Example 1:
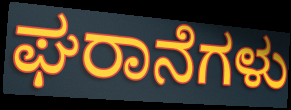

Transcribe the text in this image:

ಘರಾನೆಗಳು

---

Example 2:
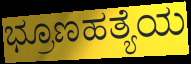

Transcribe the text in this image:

ಭ್ರೂಣಹತ್ಯೆಯ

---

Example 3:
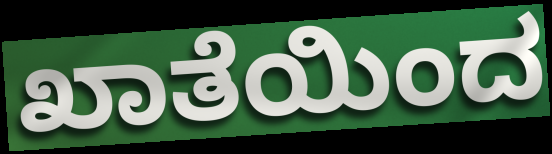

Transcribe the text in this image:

ಖಾತೆಯಿಂದ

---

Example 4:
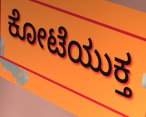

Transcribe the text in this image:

ಕೋಟೆಯುಕ್ತ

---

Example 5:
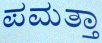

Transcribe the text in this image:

ಪಮತ್ತಾ